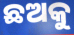
ଛଅକୁ